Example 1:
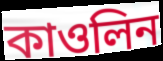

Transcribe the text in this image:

কাওলিন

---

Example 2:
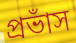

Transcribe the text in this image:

প্রভাঁস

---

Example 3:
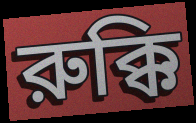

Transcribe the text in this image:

রুক্কি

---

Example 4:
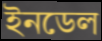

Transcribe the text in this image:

ইনডেল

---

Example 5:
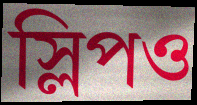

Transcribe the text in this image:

স্লিপও